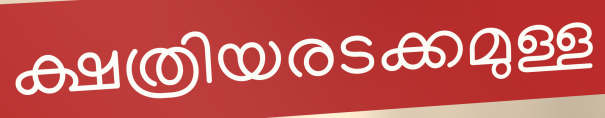
ക്ഷത്രിയരടക്കമുള്ള